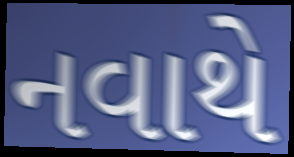
નવાથે